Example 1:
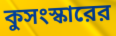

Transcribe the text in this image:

কুসংস্কারের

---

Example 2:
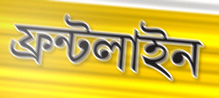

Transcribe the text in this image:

ফ্রন্টলাইন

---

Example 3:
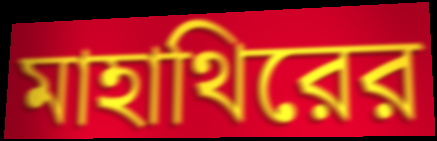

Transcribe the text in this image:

মাহাথিরের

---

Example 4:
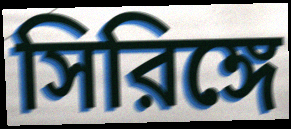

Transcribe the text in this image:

সিরিঙ্গে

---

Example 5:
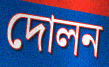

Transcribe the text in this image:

দোলন